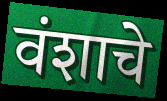
वंशाचे